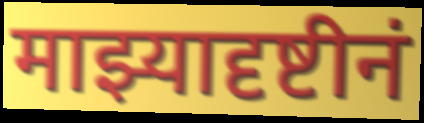
माझ्यादृष्टीनं